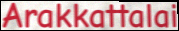
Arakkattalai